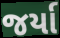
જર્યા